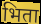
भिता